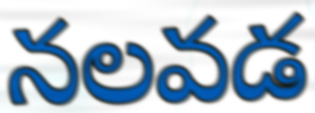
నలవడ